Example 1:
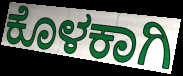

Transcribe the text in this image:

ಕೊಳಕಾಗಿ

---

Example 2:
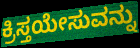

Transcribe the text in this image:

ಕ್ರಿಸ್ತಯೇಸುವನ್ನು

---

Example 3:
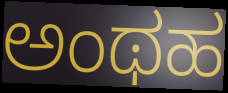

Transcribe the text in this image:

ಅಂಥಹ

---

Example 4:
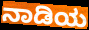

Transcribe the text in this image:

ನಾಡಿಯ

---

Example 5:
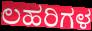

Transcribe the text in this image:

ಲಹರಿಗಳ